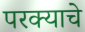
परक्याचे